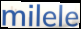
milele